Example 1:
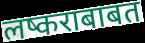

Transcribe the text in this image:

लष्कराबाबत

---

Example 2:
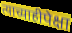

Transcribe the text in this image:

त्याच्याहीपेक्षा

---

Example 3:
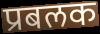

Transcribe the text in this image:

प्रबलक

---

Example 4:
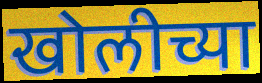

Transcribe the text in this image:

खोलीच्या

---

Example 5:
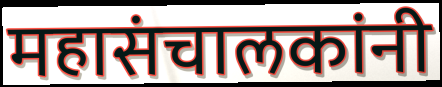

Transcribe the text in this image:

महासंचालकांनी